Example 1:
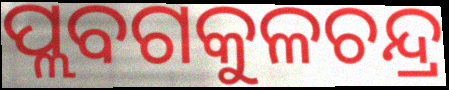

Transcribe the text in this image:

ପ୍ଲବଗକୁଳଚନ୍ଦ୍ର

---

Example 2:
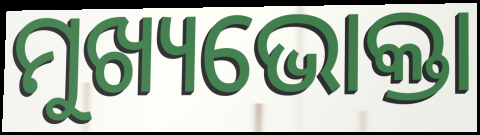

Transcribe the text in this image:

ମୁଖ୍ୟଭୋକ୍ତା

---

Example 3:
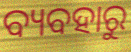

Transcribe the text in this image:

ବ୍ୟବହାରୁ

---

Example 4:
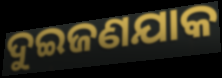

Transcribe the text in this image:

ଦୁଇଜଣଯାକ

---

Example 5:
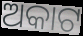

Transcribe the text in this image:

ଅକାଟ